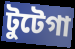
টুটেগা